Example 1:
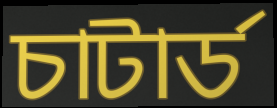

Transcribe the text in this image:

চাটার্ড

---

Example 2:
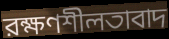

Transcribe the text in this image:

রক্ষণশীলতাবাদ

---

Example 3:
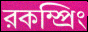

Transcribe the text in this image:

রকম্প্রিং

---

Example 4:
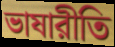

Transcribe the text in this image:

ভাষারীতি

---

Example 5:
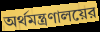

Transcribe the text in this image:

অর্থমন্ত্রণালয়ের